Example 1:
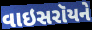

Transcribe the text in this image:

વાઇસરૉયને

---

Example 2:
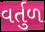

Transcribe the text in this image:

વર્તુળ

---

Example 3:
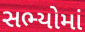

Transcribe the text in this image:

સભ્યોમાં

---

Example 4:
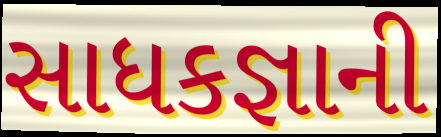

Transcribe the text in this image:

સાધકજ્ઞાની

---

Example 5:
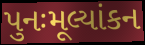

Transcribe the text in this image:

પુનઃમૂલ્યાંકન